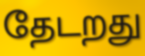
தேடறது